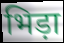
भिड़ा